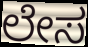
ಲೇಸ